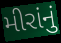
મીરાંનું